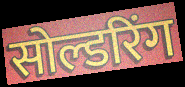
सोल्डरिंग